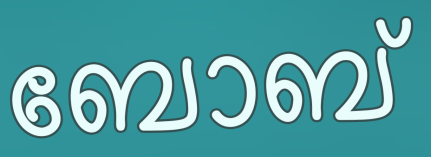
ബോബ്